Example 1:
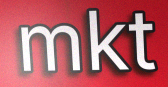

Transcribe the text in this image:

mkt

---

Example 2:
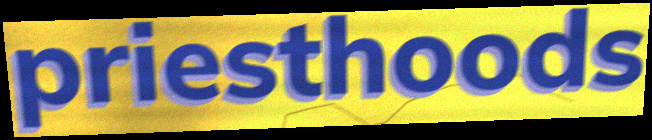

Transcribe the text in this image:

priesthoods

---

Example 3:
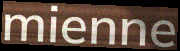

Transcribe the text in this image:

mienne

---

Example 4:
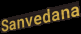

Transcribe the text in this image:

Sanvedana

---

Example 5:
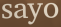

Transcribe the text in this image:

sayo